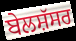
ਬੇਲਸ਼ੱਸਰ